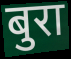
बुरा